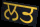
ਲਤ